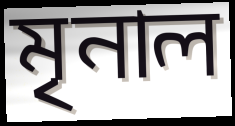
মৃনাল